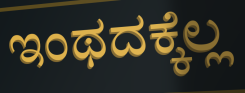
ಇಂಥದಕ್ಕೆಲ್ಲ